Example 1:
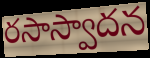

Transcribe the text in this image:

రసాస్వాదన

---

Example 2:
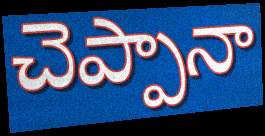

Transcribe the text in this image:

చెప్పానా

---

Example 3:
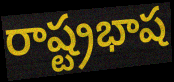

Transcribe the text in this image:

రాష్ట్రభాష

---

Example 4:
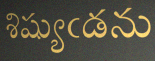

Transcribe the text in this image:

శిష్యుఁడను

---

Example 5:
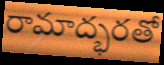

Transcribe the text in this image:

రామాద్భరతో